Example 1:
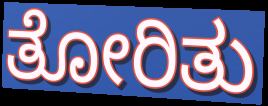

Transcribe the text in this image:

ತೋರಿತು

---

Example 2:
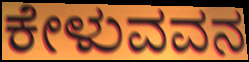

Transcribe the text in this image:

ಕೇಳುವವನ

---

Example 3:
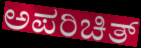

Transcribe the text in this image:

ಅಪರಿಚಿತ್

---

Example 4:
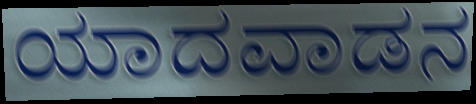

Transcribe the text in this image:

ಯಾದವಾಡನ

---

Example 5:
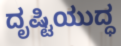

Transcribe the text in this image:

ದೃಷ್ಟಿಯುದ್ಧ